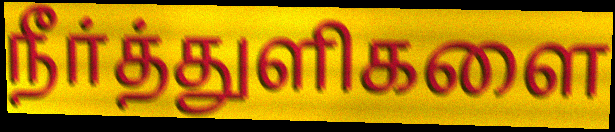
நீர்த்துளிகளை